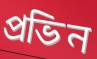
প্রভিন